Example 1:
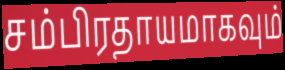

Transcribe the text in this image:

சம்பிரதாயமாகவும்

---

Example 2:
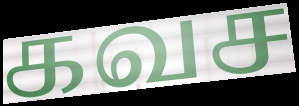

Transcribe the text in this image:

கவச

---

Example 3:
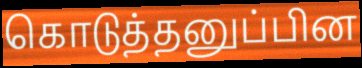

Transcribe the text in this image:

கொடுத்தனுப்பின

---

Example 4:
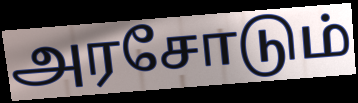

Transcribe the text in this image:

அரசோடும்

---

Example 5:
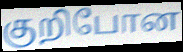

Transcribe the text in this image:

குறிபோன